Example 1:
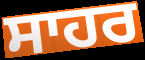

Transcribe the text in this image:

ਸਾਹਰ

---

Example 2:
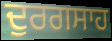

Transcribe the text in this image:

ਦੁਰਗਸਾਹ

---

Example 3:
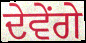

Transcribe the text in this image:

ਦੇਵੇਂਗੇ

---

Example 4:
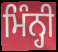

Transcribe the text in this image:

ਮਿੰਨ੍ਹੀ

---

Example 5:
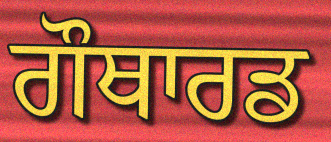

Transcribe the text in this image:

ਗੌਥਾਰਡ